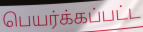
பெயர்க்கப்பட்ட